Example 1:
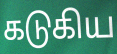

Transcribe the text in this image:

கடுகிய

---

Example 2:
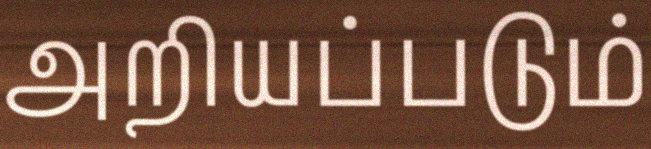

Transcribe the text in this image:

அறியப்படும்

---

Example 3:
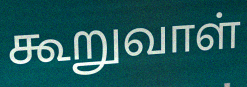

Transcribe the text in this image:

கூறுவாள்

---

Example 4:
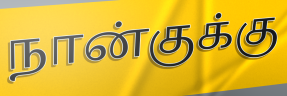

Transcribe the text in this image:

நான்குக்கு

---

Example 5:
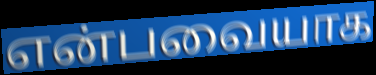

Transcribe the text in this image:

என்பவையாக